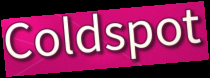
Coldspot